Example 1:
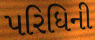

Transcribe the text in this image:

પરિધિની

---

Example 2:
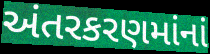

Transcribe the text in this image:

અંતરકરણમાંનાં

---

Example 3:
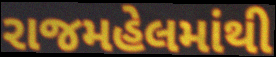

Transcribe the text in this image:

રાજમહેલમાંથી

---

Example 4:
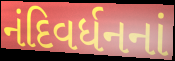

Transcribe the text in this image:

નંદિવર્ધનનાં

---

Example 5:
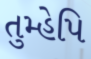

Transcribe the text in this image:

તુમ્હેપિ